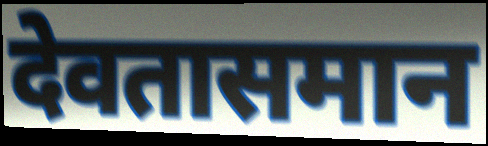
देवतासमान